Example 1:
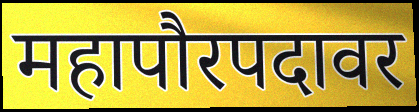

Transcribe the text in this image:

महापौरपदावर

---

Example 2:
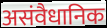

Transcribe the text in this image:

असंवैधानिक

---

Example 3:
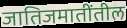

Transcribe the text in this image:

जातिजमातींतील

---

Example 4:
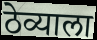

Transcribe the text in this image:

ठेव्याला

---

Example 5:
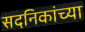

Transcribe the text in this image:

सदनिकांच्या